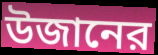
উজানের